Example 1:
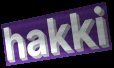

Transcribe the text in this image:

hakki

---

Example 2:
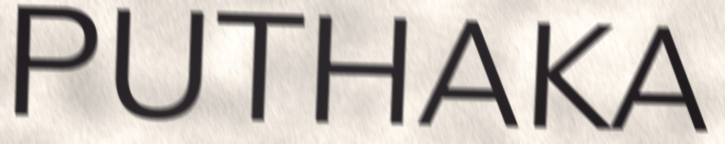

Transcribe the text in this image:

PUTHAKA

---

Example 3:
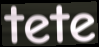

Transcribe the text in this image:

tete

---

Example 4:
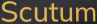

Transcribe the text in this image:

Scutum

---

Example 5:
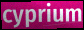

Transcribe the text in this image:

cyprium